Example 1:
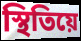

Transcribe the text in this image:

স্থিতিয়ে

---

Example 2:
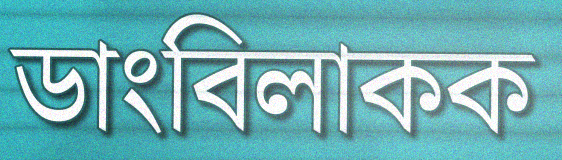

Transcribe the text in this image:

ডাংবিলাকক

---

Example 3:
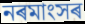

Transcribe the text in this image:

নৰমাংসৰ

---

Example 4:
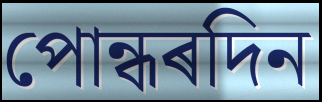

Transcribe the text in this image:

পোন্ধৰদিন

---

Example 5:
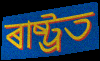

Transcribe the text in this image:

ৰাষ্ট্ৰত